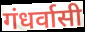
गंधर्वासी